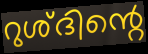
റുശ്ദിന്റെ